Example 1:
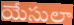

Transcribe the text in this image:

యేసులా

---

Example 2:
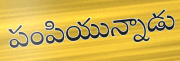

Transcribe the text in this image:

పంపియున్నాడు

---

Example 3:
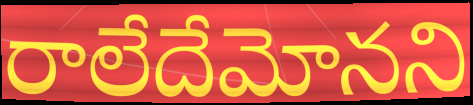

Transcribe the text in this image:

రాలేదేమోనని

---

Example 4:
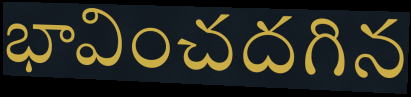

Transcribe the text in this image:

భావించదగిన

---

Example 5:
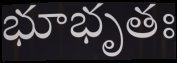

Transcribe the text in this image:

భూభృతః